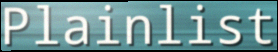
Plainlist